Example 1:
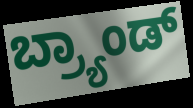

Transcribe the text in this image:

ಬ್ರ್ಯಾಂಡ್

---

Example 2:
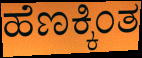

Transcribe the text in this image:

ಹೆಣಕ್ಕಿಂತ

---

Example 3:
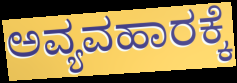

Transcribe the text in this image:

ಅವ್ಯವಹಾರಕ್ಕೆ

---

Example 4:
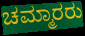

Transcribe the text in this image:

ಚಮ್ಮಾರರು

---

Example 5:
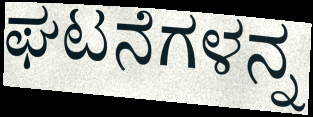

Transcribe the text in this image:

ಘಟನೆಗಳನ್ನ